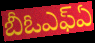
బీఓఎఫ్ఏ